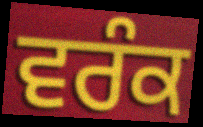
ਵਰੰਕ